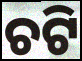
ଚଟି